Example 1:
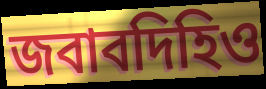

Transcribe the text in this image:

জবাবদিহিও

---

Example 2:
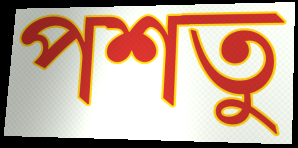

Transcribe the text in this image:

পশতু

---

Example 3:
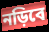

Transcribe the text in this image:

নড়িবে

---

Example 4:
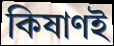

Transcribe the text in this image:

কিষাণই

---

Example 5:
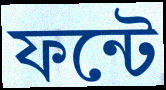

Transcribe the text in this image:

ফন্টে